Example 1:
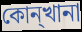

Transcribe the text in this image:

কোন্খানা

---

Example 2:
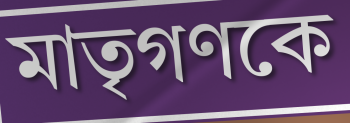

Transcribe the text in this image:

মাতৃগণকে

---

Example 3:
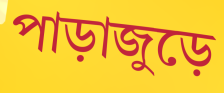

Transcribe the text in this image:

পাড়াজুড়ে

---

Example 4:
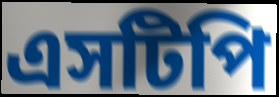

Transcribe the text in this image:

এসটিপি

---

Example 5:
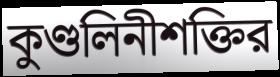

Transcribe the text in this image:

কুণ্ডলিনীশক্তির